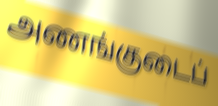
அணங்குடைப்